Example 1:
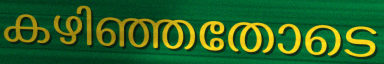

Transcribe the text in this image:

കഴിഞ്ഞതോടെ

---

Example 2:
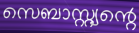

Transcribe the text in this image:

സെബാസ്റ്റ്യന്റെ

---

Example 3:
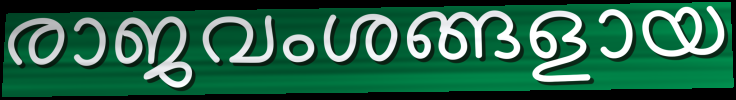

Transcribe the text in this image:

രാജവംശങ്ങളായ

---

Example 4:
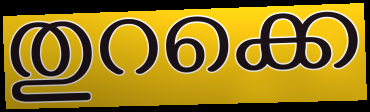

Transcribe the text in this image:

തുറക്കെ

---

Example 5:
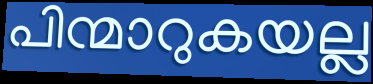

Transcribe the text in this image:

പിന്മാറുകയല്ല